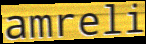
amreli